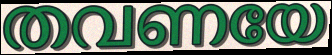
തവണയേ